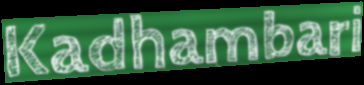
Kadhambari